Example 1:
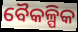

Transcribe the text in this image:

ବୈକଳ୍ପିକ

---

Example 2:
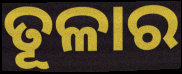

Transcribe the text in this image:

ତୂଳାର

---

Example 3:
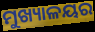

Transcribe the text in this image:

ମୁଖ୍ୟାଳୟର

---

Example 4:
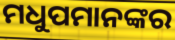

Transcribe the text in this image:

ମଧୁପମାନଙ୍କର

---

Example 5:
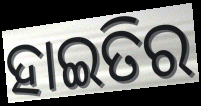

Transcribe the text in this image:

ହାଇତିର